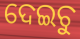
ଦେଇଚୁ